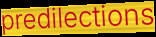
predilections